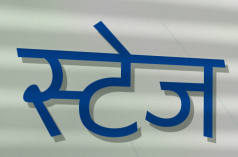
स्‍टेज